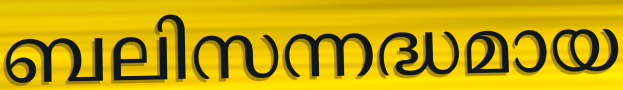
ബലിസന്നദ്ധമായ